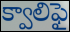
క్వాలిఫై